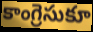
కాంగ్రెసుకూ